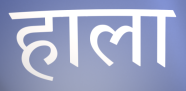
हाला